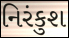
નિરંકુશ